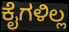
ಕೈಗಳಿಲ್ಲ